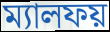
ম্যালফয়